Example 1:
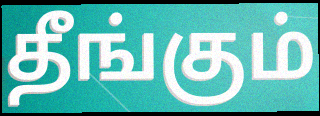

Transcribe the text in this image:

தீங்கும்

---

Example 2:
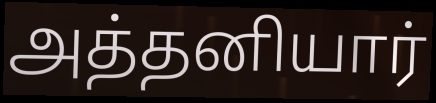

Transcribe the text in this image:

அத்தனியார்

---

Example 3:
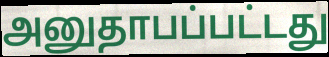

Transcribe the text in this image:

அனுதாபப்பட்டது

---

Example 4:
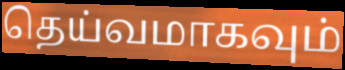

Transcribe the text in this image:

தெய்வமாகவும்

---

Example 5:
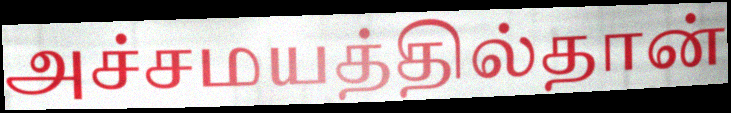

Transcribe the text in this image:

அச்சமயத்தில்தான்